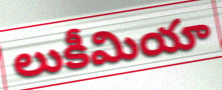
లుకీమియా